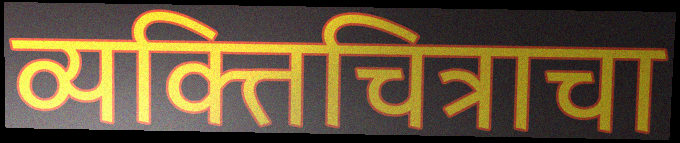
व्यक्तिचित्राचा